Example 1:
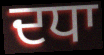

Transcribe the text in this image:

ਦਧਾ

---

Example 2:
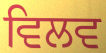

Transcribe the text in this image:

ਵਿਲਵ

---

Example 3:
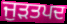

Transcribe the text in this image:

ਜੁੜਤਪਦ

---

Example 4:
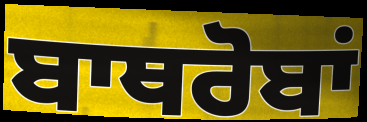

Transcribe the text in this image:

ਬਾਥਰੋਬਾਂ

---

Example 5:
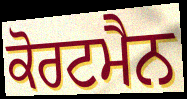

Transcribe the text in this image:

ਕੋਰਟਮੈਨ